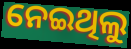
ନେଇଥିଲୁ